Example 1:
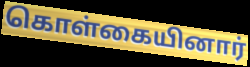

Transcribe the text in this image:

கொள்கையினார்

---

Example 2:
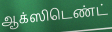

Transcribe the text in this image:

ஆக்ஸிடெண்ட்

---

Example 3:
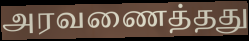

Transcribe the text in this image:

அரவணைத்தது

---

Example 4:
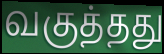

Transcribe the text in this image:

வகுத்தது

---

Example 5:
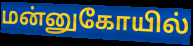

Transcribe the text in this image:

மன்னுகோயில்